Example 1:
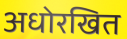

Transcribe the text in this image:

अधोरखित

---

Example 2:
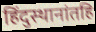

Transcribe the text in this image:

हिंदुस्थानांतहि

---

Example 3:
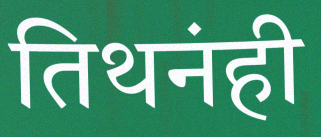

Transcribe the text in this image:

तिथनंही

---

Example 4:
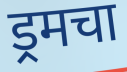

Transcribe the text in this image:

ड्रमचा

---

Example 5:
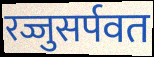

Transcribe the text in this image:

रज्जुसर्पवत